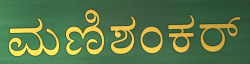
ಮಣಿಶಂಕರ್